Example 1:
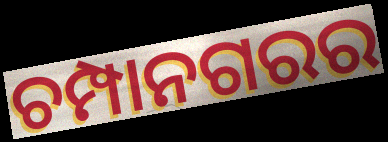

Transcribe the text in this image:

ଚମ୍ପାନଗରର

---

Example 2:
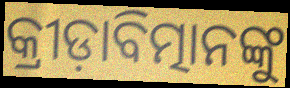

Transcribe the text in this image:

କ୍ରୀଡ଼ାବିତ୍ମାନଙ୍କୁ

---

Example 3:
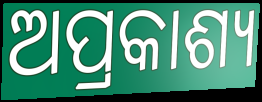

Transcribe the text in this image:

ଅପ୍ରକାଶ୍ୟ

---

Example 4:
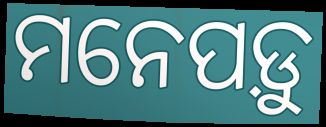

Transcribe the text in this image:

ମନେପଡ଼ୁ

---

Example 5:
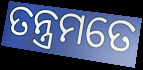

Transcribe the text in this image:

ତନ୍ତ୍ରମତେ